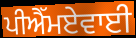
ਪੀਐੱਮਏਵਾਈ